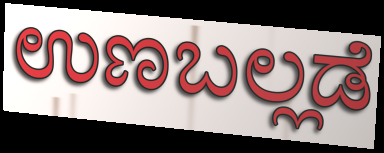
ಉಣಬಲ್ಲಡೆ